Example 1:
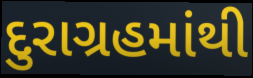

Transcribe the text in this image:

દુરાગ્રહમાંથી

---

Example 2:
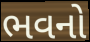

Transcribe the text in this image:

ભવનો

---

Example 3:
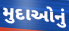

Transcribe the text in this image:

મુદાઓનું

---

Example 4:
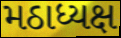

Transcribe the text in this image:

મઠાધ્યક્ષ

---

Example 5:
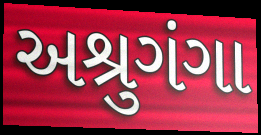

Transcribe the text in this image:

અશ્રુગંગા